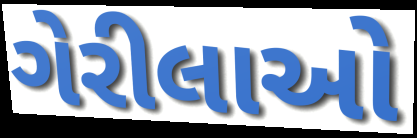
ગેરીલાઓ